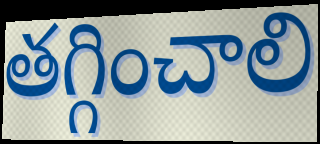
తగ్గించాలి